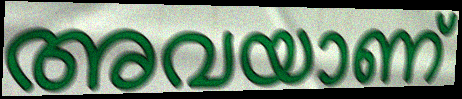
അവയാണ്